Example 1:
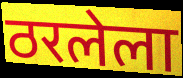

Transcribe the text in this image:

ठरलेला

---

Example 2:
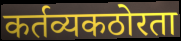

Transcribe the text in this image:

कर्तव्यकठोरता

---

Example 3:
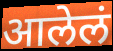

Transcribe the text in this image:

आलेलं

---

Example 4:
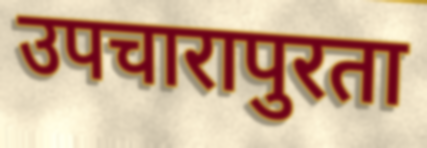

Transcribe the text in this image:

उपचारापुरता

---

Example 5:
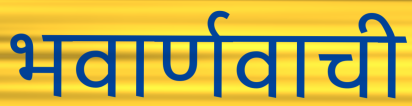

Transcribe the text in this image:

भवार्णवाची